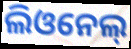
ଲିଓନେଲ୍